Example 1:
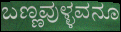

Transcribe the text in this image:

ಬಣ್ಣವುಳ್ಳವನೂ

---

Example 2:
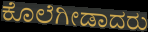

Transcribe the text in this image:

ಕೊಲೆಗೀಡಾದರು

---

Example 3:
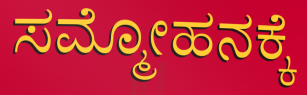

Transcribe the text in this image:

ಸಮ್ಮೋಹನಕ್ಕೆ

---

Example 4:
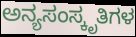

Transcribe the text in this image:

ಅನ್ಯಸಂಸ್ಕೃತಿಗಳ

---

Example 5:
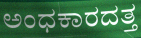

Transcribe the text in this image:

ಅಂಧಕಾರದತ್ತ